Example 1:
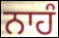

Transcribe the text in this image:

ਨਾਹੰ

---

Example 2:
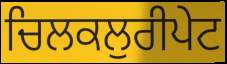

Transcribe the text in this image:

ਚਿਲਕਲੁਰੀਪੇਟ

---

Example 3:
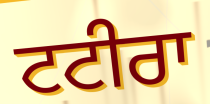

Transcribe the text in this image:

ਟਟੀਰਾ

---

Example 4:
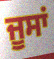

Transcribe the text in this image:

ਜੂਸਾਂ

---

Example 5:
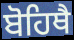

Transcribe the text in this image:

ਬੋਹਿਥੈ